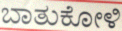
ಬಾತುಕೋಳಿ